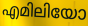
എമിലിയോ